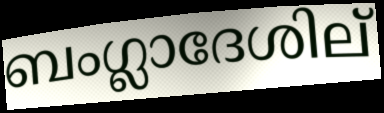
ബംഗ്ലാദേശില്